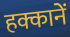
हक्कानें